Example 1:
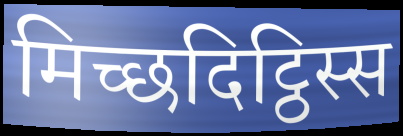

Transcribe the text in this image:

मिच्छदिट्ठिस्स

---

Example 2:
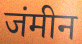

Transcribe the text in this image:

जंमीन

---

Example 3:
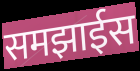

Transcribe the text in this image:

समझाईस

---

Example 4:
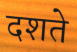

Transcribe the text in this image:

दशते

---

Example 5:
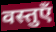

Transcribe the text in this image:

वस्तुएँ